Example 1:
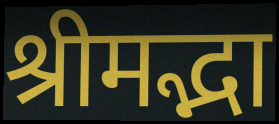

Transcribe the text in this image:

श्रीमद्भा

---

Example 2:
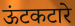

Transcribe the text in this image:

ऊंटकटारे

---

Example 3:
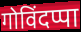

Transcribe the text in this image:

गोविंदप्पा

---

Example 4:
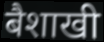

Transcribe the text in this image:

बैशाखी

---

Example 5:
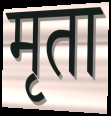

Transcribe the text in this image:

मृता